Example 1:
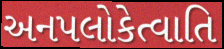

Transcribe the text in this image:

અનપલોકેત્વાતિ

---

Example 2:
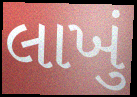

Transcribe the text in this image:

લાખું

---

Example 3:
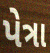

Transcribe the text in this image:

પેત્રા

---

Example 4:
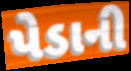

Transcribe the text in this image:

પેડાની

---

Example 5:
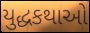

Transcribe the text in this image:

યુદ્ધકથાઓ